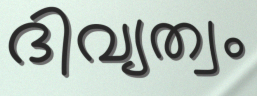
ദിവ്യത്വം